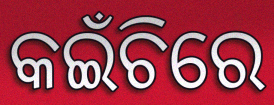
କଇଁଚିରେ